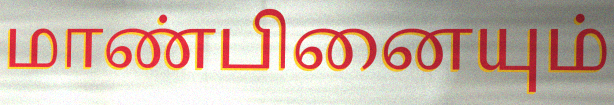
மாண்பினையும்